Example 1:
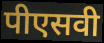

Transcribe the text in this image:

पीएसवी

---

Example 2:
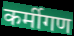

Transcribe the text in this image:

कर्मीगण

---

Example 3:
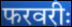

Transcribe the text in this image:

फरवरीः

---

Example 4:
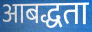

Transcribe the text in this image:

आबद्धता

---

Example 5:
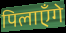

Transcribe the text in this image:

पिलाएँगे